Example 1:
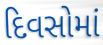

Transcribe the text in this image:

દિવસોમાં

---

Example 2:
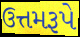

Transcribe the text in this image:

ઉત્તમરૂપે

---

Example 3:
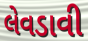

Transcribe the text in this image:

લેવડાવી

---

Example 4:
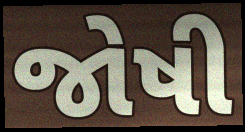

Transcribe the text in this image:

જોષી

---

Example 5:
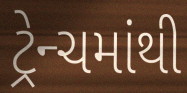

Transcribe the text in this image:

ટ્રેન્ચમાંથી